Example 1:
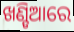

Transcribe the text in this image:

ଖଣ୍ଡିଆରେ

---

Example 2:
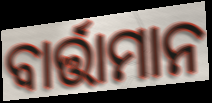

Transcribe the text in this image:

ବାର୍ତ୍ତାମାନ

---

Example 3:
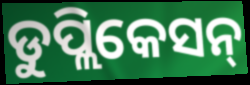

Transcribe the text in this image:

ଡୁପ୍ଲିକେସନ୍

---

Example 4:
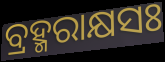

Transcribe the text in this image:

ବ୍ରହ୍ମରାକ୍ଷସଃ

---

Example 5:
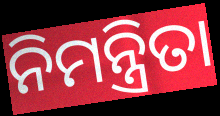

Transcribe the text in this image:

ନିମନ୍ତ୍ରିତା